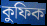
কুফিক